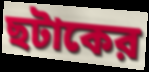
ছটাকের